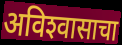
अविश्‍वासाचा